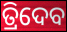
ତ୍ରିଦେବ